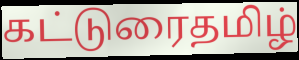
கட்டுரைதமிழ்